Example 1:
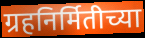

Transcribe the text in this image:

ग्रहनिर्मितीच्या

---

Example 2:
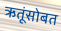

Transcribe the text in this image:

ऋतूंसोबत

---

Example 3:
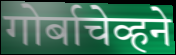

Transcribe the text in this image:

गोर्बाचेव्हने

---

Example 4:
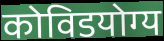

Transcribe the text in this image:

कोविडयोग्य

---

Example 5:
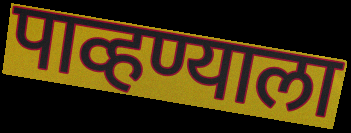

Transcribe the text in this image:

पाव्हण्याला